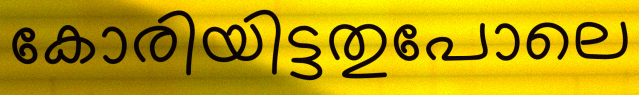
കോരിയിട്ടതുപോലെ